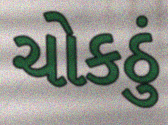
ચોકઠું